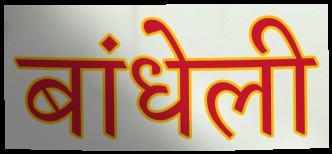
बांधेली